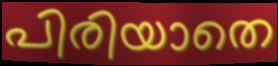
പിരിയാതെ